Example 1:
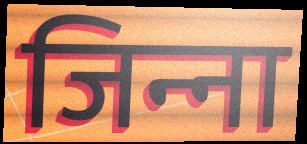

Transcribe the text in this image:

जिन्ना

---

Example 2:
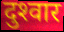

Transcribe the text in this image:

दुश्‍वार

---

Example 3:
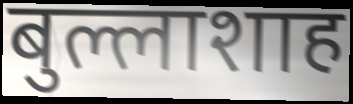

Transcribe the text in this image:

बुल्लाशाह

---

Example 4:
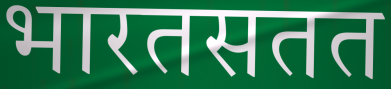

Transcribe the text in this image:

भारतसतत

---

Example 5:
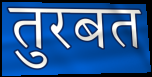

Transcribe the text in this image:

तुरबत